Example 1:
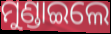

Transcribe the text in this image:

ମୁଣ୍ଡାଇଲେ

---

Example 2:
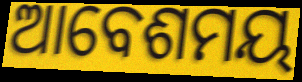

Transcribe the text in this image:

ଆବେଶମୟ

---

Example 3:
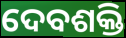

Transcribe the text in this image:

ଦେବଶକ୍ତି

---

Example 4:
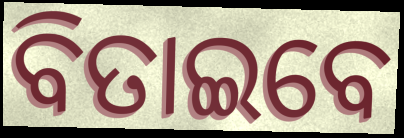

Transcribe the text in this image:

ବିତାଇବେ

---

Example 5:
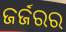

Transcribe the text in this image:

ଜର୍ଜରର